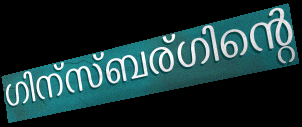
ഗിന്സ്ബര്ഗിന്റെ